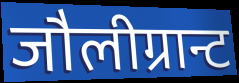
जौलीग्रान्ट